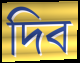
দিব